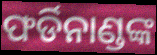
ଫର୍ଡିନାଣ୍ଡଙ୍କ